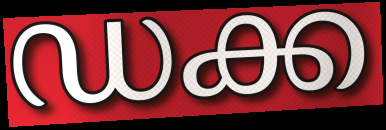
ഡക്ക